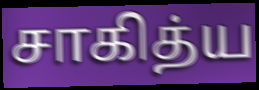
சாகித்ய